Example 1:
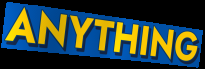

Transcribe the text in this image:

ANYTHING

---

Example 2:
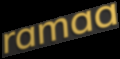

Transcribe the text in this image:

ramaa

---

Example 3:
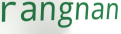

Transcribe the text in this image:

rangnan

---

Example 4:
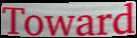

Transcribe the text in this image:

Toward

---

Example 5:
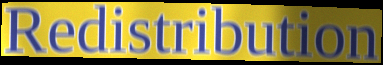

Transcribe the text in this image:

Redistribution